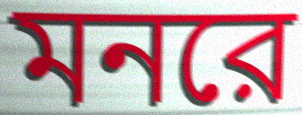
মনরে